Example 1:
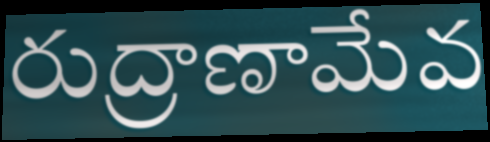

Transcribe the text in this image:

రుద్రాణామేవ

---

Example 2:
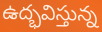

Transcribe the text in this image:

ఉద్భవిస్తున్న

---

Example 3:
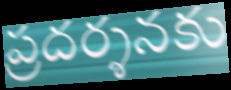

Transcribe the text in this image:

ప్రదర్శనకు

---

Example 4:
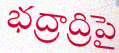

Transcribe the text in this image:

భద్రాద్రిపై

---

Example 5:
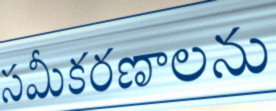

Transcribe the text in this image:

సమీకరణాలను